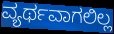
ವ್ಯರ್ಥವಾಗಲಿಲ್ಲ